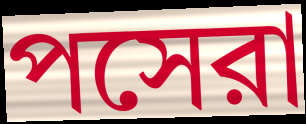
পসেরা